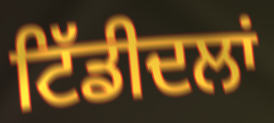
ਟਿੱਡੀਦਲਾਂ